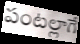
పంటల్లాగే